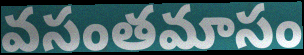
వసంతమాసం